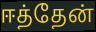
ஈத்தேன்